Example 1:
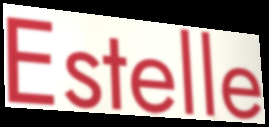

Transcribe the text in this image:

Estelle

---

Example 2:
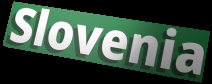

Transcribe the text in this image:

Slovenia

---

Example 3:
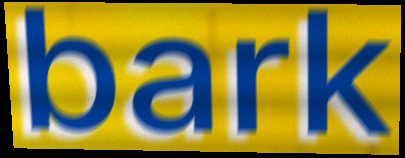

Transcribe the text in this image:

bark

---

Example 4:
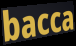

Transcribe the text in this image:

bacca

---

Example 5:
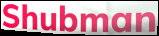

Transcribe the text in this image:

Shubman